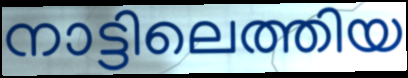
നാട്ടിലെത്തിയ